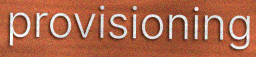
provisioning